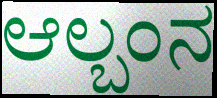
ಆಲ್ಬಂನ